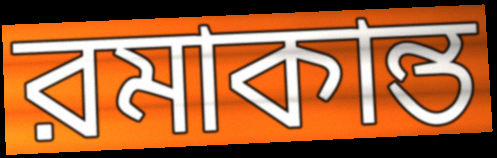
রমাকান্ত